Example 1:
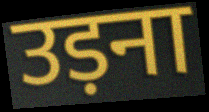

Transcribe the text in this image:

उड़ना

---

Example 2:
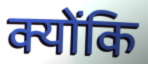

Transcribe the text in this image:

क्योंकि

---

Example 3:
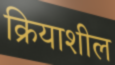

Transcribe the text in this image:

क्रियाशील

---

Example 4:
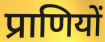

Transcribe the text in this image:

प्राणियों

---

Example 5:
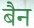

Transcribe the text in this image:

बैन